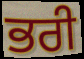
ਭਰੀ